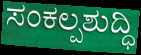
ಸಂಕಲ್ಪಶುದ್ಧಿ